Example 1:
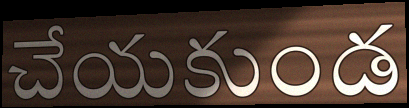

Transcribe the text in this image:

చేయకుండ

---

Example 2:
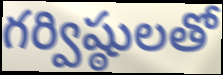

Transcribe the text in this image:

గర్విష్ఠులతో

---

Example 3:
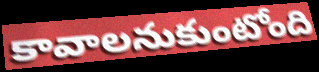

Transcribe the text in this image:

కావాలనుకుంటోంది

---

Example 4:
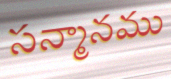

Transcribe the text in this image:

సన్మానము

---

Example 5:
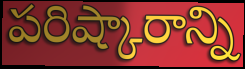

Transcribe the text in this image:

పరిష్కారాన్ని